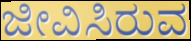
ಜೀವಿಸಿರುವ